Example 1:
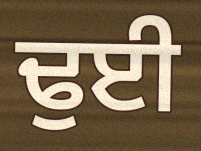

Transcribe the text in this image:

ਢੁਈ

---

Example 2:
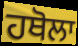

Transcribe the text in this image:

ਹਥੋਲਾ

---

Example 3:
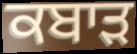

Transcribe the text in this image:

ਕਬਾੜ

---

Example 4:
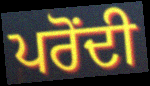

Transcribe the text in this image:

ਪਰੋਂਦੀ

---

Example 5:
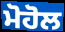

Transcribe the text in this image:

ਮੋਹੋਲ